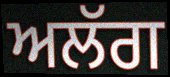
ਅਲੱਗ